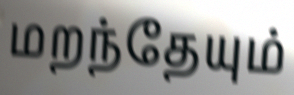
மறந்தேயும்